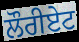
ਲੌਰੀਏਟ